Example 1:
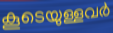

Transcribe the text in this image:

കൂടെയുള്ളവർ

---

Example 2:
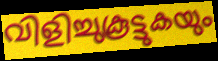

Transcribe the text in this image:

വിളിച്ചുകൂട്ടുകയും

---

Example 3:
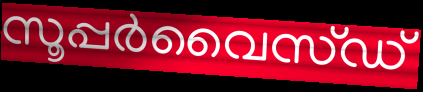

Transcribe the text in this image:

സൂപ്പർവൈസ്ഡ്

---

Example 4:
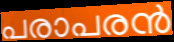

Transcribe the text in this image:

പരാപരൻ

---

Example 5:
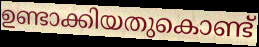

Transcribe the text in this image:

ഉണ്ടാക്കിയതുകൊണ്ട്